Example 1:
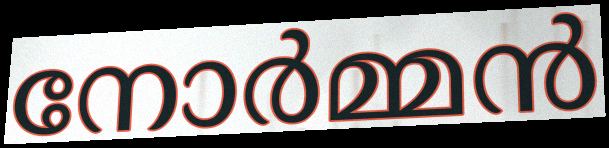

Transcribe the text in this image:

നോർമ്മൻ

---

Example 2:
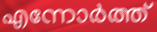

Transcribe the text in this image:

എന്നോർത്ത്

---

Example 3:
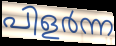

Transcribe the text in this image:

പിളർന്ന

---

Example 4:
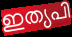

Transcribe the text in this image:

ഇത്യപി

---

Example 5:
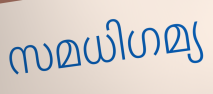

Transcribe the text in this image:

സമധിഗമ്യ